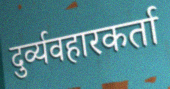
दुर्व्यवहारकर्ता